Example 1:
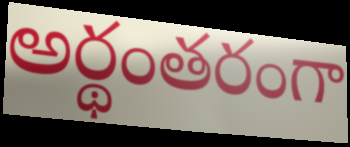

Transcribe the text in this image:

అర్థంతరంగా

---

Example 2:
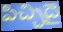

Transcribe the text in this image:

పిచ్చిదై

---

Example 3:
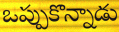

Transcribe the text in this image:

ఒప్పుకొన్నాడు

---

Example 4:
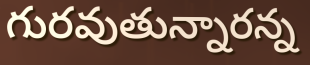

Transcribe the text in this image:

గురవుతున్నారన్న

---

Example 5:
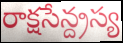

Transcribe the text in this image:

రాక్షసేన్ద్రస్య